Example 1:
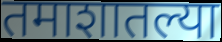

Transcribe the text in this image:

तमाशातल्या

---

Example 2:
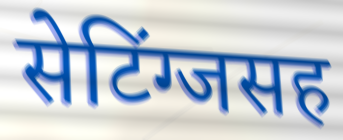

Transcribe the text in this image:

सेटिंग्जसह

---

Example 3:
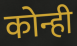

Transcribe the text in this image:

कोन्ही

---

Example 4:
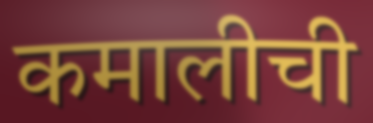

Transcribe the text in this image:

कमालीची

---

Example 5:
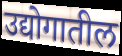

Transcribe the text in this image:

उद्योगातील